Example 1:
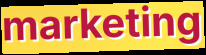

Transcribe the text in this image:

marketing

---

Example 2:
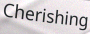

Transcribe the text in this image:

Cherishing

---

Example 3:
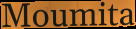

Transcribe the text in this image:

Moumita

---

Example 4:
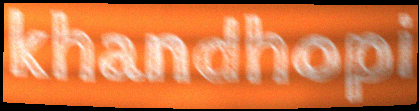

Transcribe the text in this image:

khandhopi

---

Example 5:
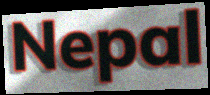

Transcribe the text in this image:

Nepal